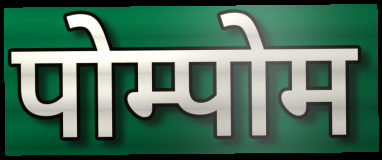
पोम्पोम